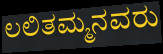
ಲಲಿತಮ್ಮನವರು